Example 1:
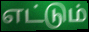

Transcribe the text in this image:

எட்டும்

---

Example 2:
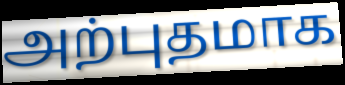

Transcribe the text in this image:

அற்புதமாக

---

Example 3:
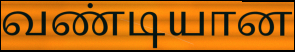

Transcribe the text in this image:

வண்டியான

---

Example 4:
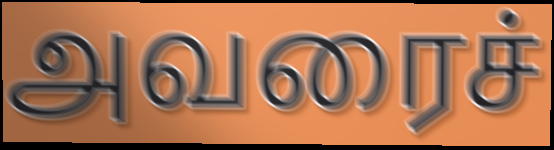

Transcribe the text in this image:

அவரைச்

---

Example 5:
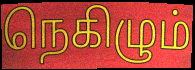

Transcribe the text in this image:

நெகிழும்